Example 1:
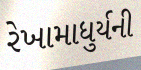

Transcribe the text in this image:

રેખામાધુર્યની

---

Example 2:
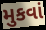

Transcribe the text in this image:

મુકવાં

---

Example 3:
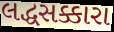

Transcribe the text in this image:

લદ્ધસક્કારા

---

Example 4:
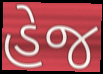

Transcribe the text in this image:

હેજ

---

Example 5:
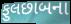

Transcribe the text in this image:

ફુલછાબના